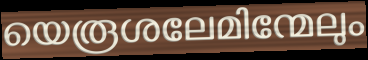
യെരൂശലേമിന്മേലും